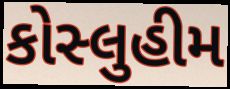
કોસ્લુહીમ